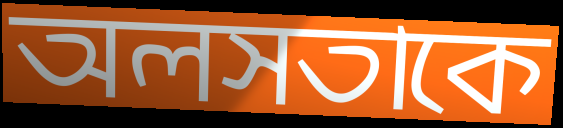
অলসতাকে